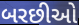
બરછીઓ